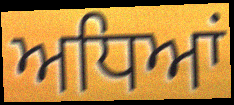
ਅਧਿਆਂ